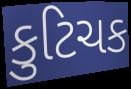
કુટિચક